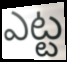
ఎట్ట